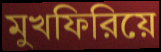
মুখফিরিয়ে